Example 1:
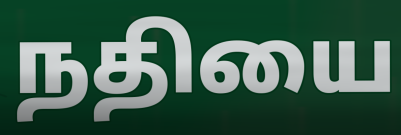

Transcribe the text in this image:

நதியை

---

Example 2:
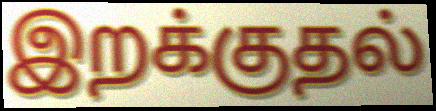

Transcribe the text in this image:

இறக்குதல்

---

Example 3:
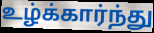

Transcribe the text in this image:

உழ்க்கார்ந்து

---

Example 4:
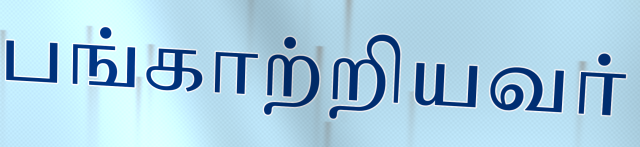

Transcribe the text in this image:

பங்காற்றியவர்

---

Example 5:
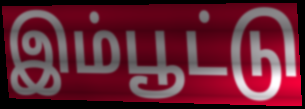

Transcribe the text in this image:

இம்பூட்டு